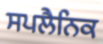
ਸਪਲੈਨਿਕ